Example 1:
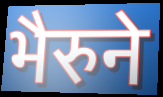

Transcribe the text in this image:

भैरुने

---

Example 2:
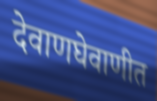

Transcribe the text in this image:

देवाणघेवाणीत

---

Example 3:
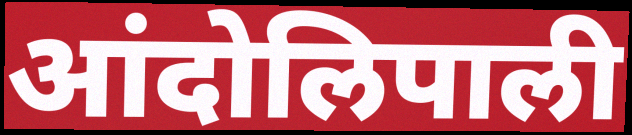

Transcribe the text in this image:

आंदोलिपाली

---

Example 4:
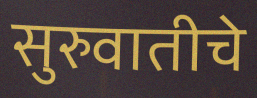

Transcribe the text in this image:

सुरुवातीचे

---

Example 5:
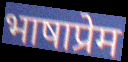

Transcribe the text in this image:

भाषाप्रेम